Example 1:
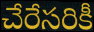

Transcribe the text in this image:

చేరేసరికీ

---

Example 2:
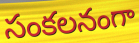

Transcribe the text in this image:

సంకలనంగా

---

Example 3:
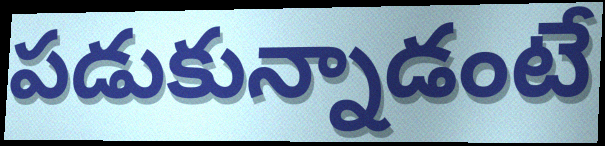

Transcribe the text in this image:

పడుకున్నాడంటే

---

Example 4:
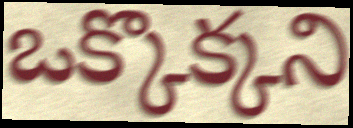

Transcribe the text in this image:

ఒక్కొక్కని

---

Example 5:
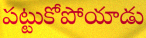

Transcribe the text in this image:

పట్టుకోపోయాడు